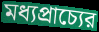
মধ্যপ্রাচ্যের